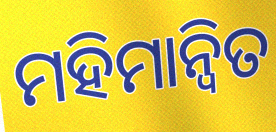
ମହିମାନ୍ୱିତ